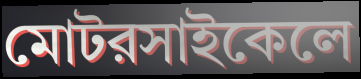
মোটরসাইকেলে